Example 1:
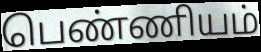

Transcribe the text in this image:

பெண்ணியம்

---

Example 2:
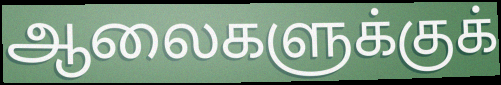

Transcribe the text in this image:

ஆலைகளுக்குக்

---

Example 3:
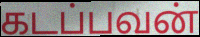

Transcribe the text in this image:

கடப்பவன்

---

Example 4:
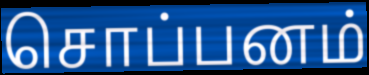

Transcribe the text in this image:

சொப்பனம்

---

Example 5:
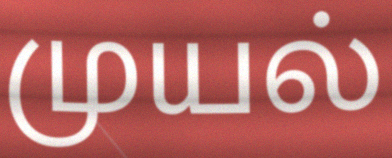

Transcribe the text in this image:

முயல்